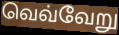
வெவ்வேறு